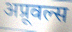
अप्रूवल्स